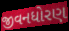
જીવનધોરણ